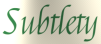
Subtlety